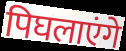
पिघलाएंगे